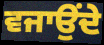
ਵਜਾਉਂਦੇ